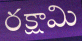
రక్షామి